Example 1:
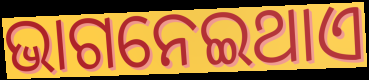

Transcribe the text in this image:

ଭାଗନେଇଥାଏ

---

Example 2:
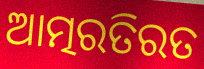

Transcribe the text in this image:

ଆତ୍ମରତିରତ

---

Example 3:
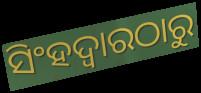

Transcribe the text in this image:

ସିଂହଦ୍ୱାରଠାରୁ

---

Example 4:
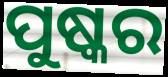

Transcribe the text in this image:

ପୁଷ୍କର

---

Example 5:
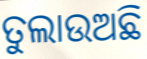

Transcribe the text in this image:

ତୁଲାଉଅଛି